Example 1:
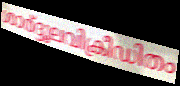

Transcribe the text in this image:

ശാര്ദ്ദൂലവിക്രീഡിതം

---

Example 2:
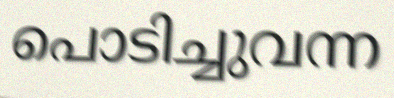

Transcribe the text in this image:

പൊടിച്ചുവന്ന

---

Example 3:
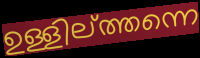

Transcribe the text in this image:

ഉള്ളില്ത്തന്നെ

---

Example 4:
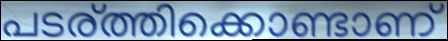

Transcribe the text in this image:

പടര്ത്തിക്കൊണ്ടാണ്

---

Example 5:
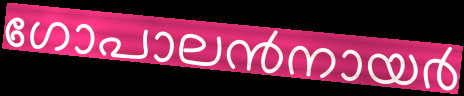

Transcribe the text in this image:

ഗോപാലൻനായർ